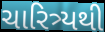
ચારિત્ર્યથી